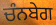
ਚੰਨਬੇਗ